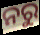
ନରୁ